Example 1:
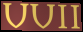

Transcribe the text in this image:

UUII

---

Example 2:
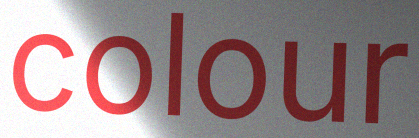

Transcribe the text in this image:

colour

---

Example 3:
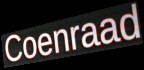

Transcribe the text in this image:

Coenraad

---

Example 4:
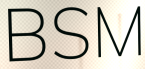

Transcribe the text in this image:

BSM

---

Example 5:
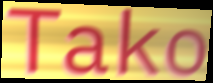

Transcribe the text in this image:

Tako